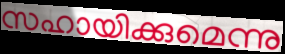
സഹായിക്കുമെന്നു